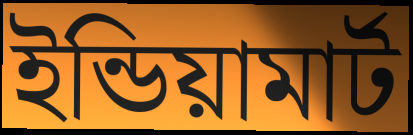
ইন্ডিয়ামার্ট